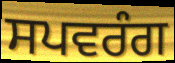
ਸਪਵਰੰਗ